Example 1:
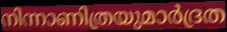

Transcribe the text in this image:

നിന്നാണിത്രയുമാർദ്രത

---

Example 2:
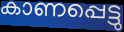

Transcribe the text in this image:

കാണപ്പെട്ടു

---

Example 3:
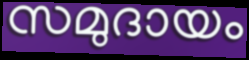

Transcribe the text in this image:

സമുദായം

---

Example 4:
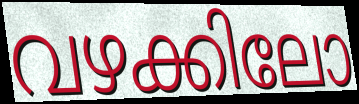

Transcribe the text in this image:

വഴക്കിലോ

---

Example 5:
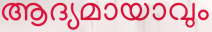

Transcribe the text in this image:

ആദ്യമായാവും